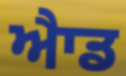
ਐਾਡ